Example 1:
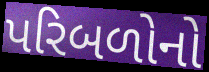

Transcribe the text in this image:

પરિબળોનો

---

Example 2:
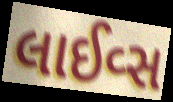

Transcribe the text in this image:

લાઈવ્સ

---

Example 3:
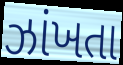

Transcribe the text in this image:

ઝાંખતા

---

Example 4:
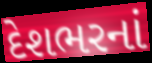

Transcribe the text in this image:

દેશભરનાં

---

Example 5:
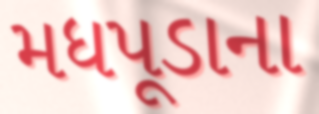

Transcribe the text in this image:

મધપૂડાના